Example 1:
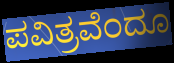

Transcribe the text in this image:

ಪವಿತ್ರವೆಂದೂ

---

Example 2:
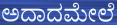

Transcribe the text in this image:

ಅದಾದಮೇಲೆ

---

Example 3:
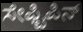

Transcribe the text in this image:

ಸೇಫ್ಟಿಪಿನ್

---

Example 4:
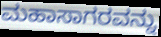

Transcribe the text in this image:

ಮಹಾಸಾಗರವನ್ನು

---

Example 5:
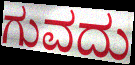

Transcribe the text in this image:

ಗುವದು